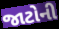
જાટોની